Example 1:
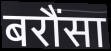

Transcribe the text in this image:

बरौंसा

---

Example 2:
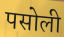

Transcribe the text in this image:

पसोली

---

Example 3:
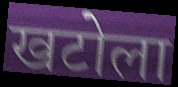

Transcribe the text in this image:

खटोला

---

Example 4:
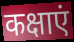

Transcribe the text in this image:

कक्षाएं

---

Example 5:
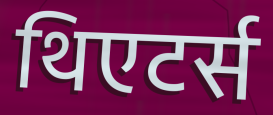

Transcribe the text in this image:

थिएटर्स